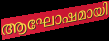
ആഘോഷമായി